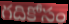
గదికోసం